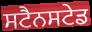
ਸਟੈਨਸਟੇਡ